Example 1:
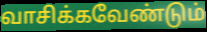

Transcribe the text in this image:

வாசிக்கவேண்டும்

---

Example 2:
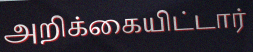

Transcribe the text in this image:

அறிக்கையிட்டார்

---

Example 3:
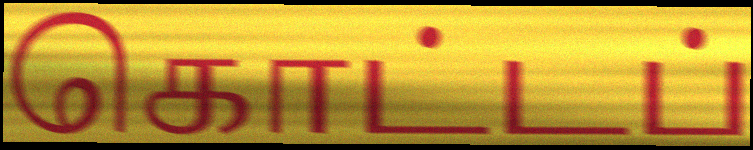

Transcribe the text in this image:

கொட்டப்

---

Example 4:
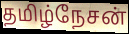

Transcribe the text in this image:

தமிழ்நேசன்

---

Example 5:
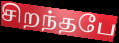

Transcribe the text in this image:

சிறந்தபே